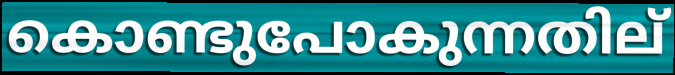
കൊണ്ടുപോകുന്നതില്